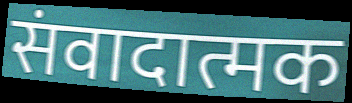
संवादात्मक